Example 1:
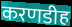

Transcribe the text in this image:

करणडीह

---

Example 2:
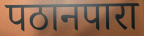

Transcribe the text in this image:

पठानपारा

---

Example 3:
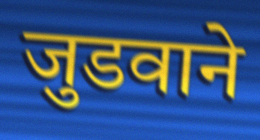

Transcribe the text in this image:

जुडवाने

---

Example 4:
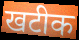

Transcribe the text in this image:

खटीक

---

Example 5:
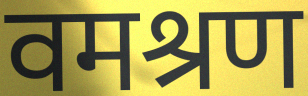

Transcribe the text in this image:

वमश्रण